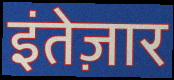
इंतेज़ार